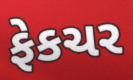
ફેકચર